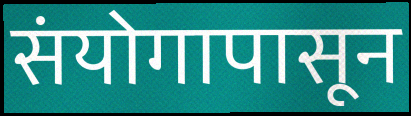
संयोगापासून